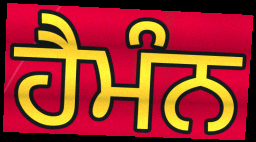
ਹੈਮੰਨ